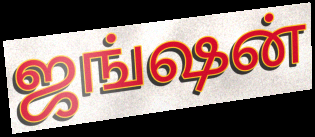
ஜங்ஷன்